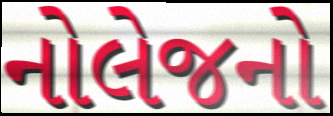
નોલેજનો